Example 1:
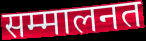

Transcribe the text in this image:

सम्मालनत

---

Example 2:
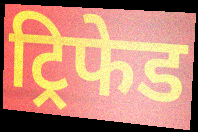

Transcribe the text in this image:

ट्रिफेड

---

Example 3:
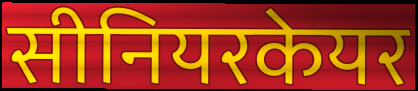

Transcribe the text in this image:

सीनियरकेयर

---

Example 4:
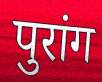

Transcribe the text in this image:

पुरांग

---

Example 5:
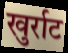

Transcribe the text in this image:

खुर्राट